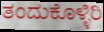
ತಂದುಕೊಳ್ಳಿರಿ